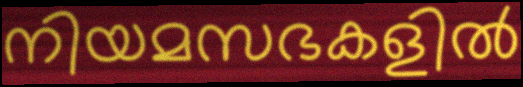
നിയമസഭകളിൽ